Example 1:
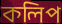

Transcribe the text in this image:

কলিপ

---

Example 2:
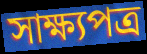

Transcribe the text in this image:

সাক্ষ্যপত্র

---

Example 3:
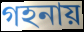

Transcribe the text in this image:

গহনায়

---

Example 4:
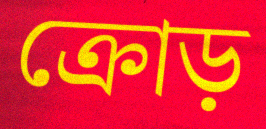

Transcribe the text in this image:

ক্রোড়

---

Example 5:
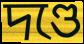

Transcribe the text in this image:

দণ্ডে